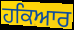
ਹਕਿਆਰ